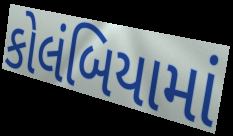
કોલંબિયામાં